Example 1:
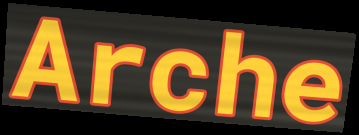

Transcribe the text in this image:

Arche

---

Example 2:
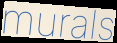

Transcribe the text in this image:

murals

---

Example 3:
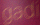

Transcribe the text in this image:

gadi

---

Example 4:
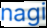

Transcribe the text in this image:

nagi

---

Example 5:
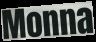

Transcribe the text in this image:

Monna